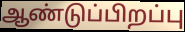
ஆண்டுப்பிறப்பு